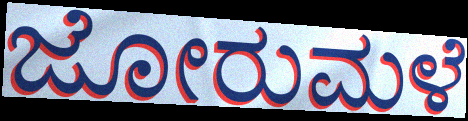
ಜೋರುಮಳೆ